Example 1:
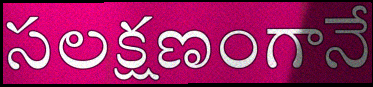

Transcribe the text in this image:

సలక్షణంగానే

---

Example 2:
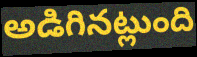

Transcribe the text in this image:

అడిగినట్లుంది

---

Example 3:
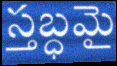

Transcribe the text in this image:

స్తబ్ధమై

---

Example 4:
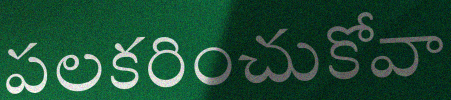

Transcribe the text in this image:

పలకరించుకోవా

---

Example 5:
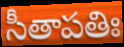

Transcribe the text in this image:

సీతాపతిః